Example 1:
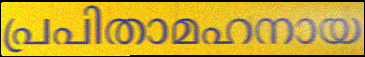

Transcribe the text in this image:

പ്രപിതാമഹനായ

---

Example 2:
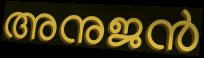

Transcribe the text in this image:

അനുജൻ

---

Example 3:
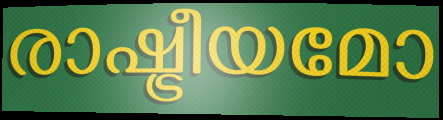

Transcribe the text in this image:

രാഷ്ട്രീയമോ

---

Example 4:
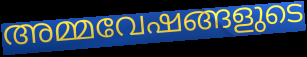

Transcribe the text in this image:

അമ്മവേഷങ്ങളുടെ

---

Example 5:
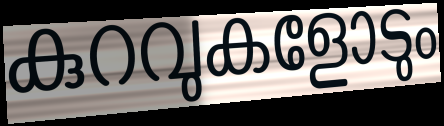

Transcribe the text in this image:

കുറവുകളോടും